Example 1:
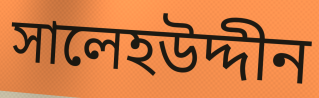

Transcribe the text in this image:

সালেহউদ্দীন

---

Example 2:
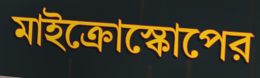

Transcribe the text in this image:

মাইক্রোস্কোপের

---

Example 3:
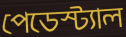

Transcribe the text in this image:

পেডেস্ট্যাল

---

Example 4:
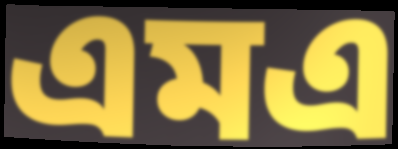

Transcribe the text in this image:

এমএ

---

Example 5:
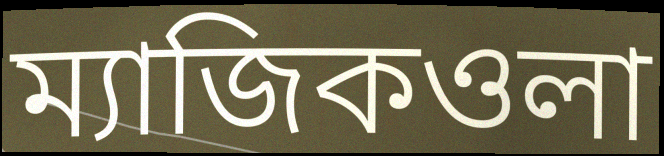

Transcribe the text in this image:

ম্যাজিকওলা